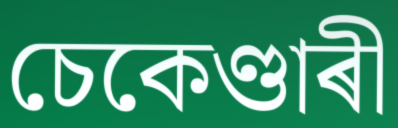
চেকেণ্ডাৰী